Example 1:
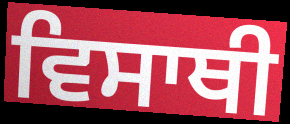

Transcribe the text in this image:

ਵਿਸਾਥੀ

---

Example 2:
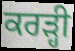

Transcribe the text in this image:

ਕਰੜ੍ਹੀ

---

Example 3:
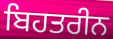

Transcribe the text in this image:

ਬਿਹਤਰੀਨ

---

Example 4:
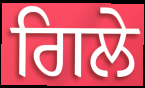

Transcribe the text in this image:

ਗਿਲੇ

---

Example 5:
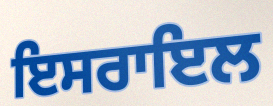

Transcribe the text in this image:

ਇਸਰਾਇਲ